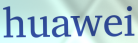
huawei